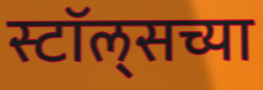
स्टॉल्सच्या